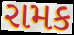
રામક